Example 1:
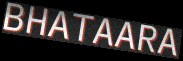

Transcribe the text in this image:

BHATAARA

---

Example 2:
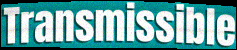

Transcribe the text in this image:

Transmissible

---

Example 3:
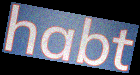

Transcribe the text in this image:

habt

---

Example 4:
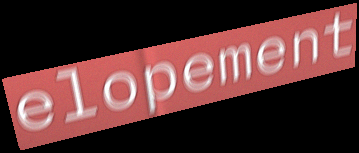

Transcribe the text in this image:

elopement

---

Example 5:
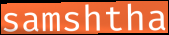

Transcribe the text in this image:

samshtha